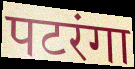
पटरंगा